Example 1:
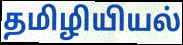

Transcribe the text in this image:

தமிழியியல்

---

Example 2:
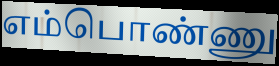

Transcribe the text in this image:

எம்பொண்ணு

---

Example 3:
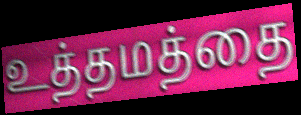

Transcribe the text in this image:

உத்தமத்தை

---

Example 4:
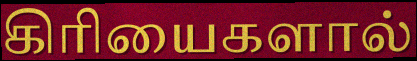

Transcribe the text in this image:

கிரியைகளால்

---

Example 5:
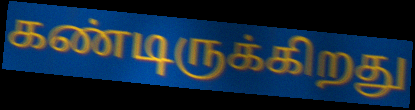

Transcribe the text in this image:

கண்டிருக்கிறது